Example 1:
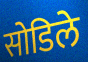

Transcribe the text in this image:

सोडिले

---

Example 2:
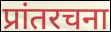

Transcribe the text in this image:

प्रांतरचना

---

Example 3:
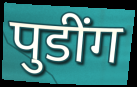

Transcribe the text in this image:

पुडींग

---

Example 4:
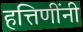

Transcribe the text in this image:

हत्तिणींनी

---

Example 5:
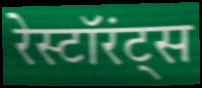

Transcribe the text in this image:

रेस्टॉरंट्स